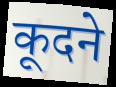
कूदने